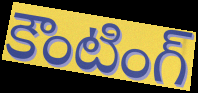
కౌంటింగ్